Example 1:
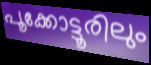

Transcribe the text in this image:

പൂക്കോട്ടൂരിലും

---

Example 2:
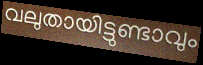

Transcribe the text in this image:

വലുതായിട്ടുണ്ടാവും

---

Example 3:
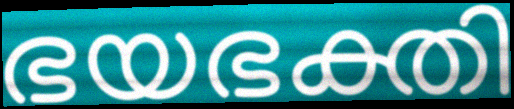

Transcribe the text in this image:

ഭയഭക്തി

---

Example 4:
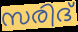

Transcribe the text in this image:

സരിദ്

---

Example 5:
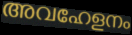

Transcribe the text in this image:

അവഹേളനം